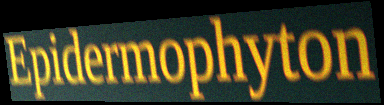
Epidermophyton